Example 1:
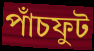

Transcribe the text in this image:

পাঁচফুট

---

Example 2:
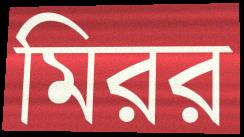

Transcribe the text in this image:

মিরর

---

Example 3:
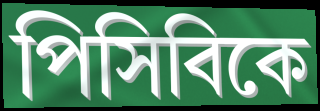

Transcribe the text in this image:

পিসিবিকে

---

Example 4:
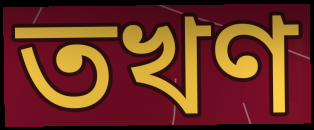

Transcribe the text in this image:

তখণ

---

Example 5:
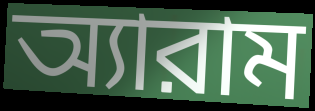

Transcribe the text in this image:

অ্যারাম